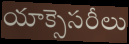
యాక్సెసరీలు